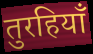
तुरहियाँ